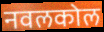
नवलकोल